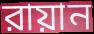
রায়ান